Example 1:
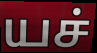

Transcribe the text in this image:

யச்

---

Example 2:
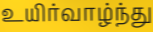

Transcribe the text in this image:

உயிர்வாழ்ந்து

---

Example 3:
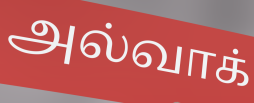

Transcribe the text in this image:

அல்வாக்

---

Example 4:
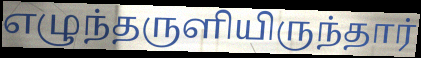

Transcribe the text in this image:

எழுந்தருளியிருந்தார்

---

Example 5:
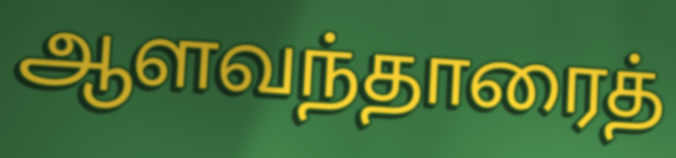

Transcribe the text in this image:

ஆளவந்தாரைத்